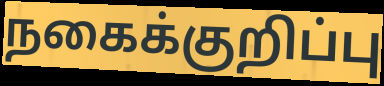
நகைக்குறிப்பு